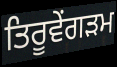
ਤਿਰੂਵੇਂਗੜਮ